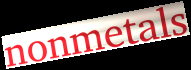
nonmetals